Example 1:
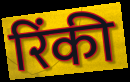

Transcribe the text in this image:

रिंकी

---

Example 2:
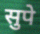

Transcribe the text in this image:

सुपे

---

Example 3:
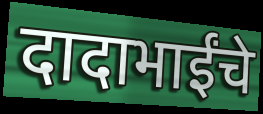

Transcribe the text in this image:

दादाभाईंचे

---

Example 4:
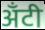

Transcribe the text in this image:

अँटी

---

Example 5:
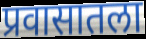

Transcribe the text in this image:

प्रवासातला